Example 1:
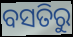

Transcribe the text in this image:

ବସତିରୁ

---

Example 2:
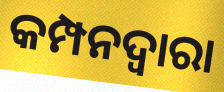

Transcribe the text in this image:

କମ୍ପନଦ୍ୱାରା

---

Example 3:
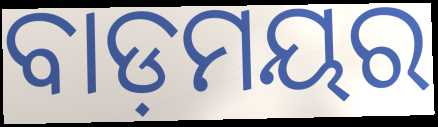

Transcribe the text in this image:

ବାଡ଼ମୟର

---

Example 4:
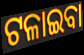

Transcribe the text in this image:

ଟଳାଇବା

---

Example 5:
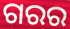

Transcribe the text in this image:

ଗରର